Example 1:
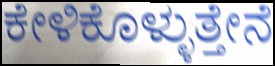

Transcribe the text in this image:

ಕೇಳಿಕೊಳ್ಳುತ್ತೇನೆ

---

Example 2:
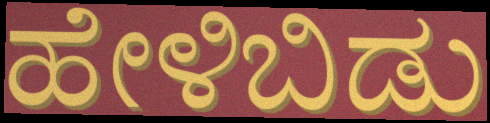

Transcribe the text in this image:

ಹೇಳಿಬಿಡು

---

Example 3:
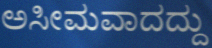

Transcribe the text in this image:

ಅಸೀಮವಾದದ್ದು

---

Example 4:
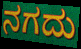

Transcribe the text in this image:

ನಗದು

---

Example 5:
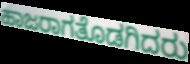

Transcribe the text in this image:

ಹಾಜರಾಗತೊಡಗಿದರು